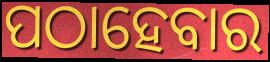
ପଠାହେବାର